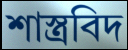
শাস্ত্ৰবিদ